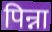
पिन्ना